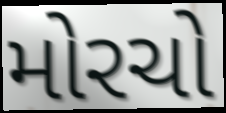
મોરચો